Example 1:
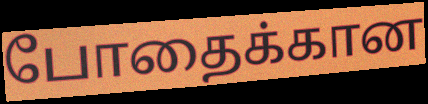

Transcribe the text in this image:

போதைக்கான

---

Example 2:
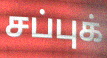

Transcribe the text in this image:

சப்புக்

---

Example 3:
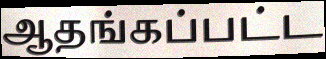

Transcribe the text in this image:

ஆதங்கப்பட்ட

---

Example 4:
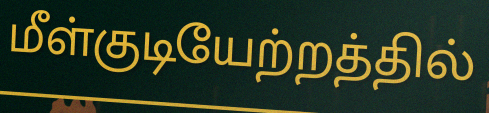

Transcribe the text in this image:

மீள்குடியேற்றத்தில்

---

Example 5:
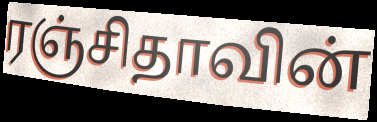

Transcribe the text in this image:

ரஞ்சிதாவின்